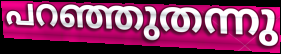
പറഞ്ഞുതന്നു